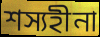
শস্যহীনা